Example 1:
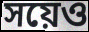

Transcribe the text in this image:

সয়েও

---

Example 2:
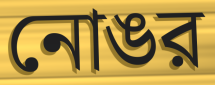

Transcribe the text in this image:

নোঙর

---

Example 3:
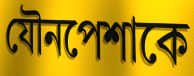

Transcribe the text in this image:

যৌনপেশাকে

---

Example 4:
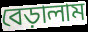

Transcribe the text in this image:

বেড়ালাম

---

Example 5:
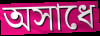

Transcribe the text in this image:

অসাধে